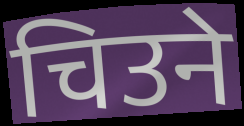
चिउने